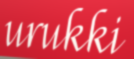
urukki